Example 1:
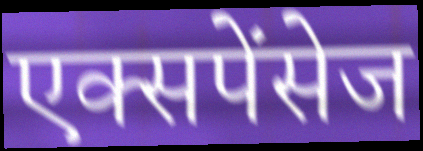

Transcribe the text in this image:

एक्सपेंसेज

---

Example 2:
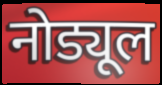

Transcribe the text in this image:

नोड्यूल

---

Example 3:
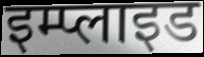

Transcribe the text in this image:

इम्प्लाइड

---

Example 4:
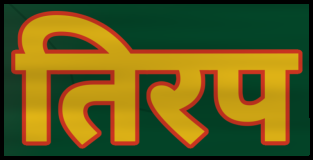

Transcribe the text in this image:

तिरप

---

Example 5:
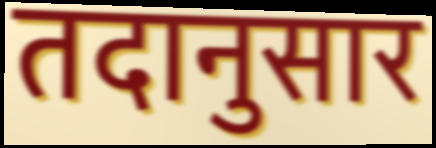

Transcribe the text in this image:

तदानुसार